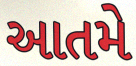
આતમે